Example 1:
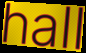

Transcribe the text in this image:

hall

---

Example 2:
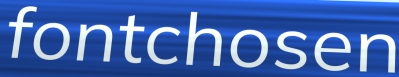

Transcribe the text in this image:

fontchosen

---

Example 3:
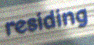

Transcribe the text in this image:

residing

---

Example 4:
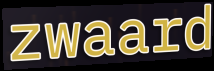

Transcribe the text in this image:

zwaard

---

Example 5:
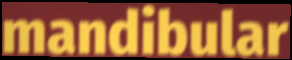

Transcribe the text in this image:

mandibular